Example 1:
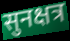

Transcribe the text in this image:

सुनक्षत्र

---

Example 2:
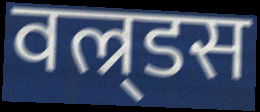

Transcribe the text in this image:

वल्र्डस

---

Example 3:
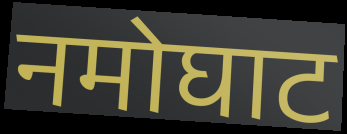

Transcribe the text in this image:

नमोघाट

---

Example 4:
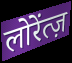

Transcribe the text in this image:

लोरेंत्ज़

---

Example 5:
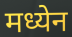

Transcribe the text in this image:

मध्येन